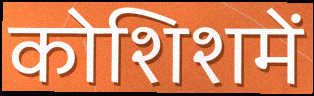
कोशिशमें